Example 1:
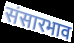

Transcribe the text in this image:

संसारभाव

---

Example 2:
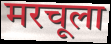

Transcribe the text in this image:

मरचूला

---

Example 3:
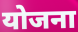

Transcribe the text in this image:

योजना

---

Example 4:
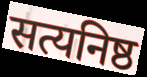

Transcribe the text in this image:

सत्यनिष्ठ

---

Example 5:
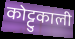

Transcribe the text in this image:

कोट्टुकाली